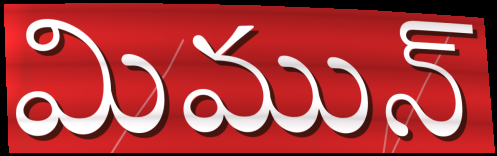
మిమున్